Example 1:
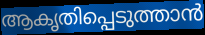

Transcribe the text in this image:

ആകൃതിപ്പെടുത്താൻ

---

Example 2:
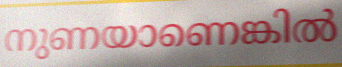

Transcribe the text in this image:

നുണയാണെങ്കിൽ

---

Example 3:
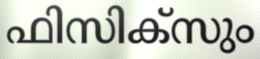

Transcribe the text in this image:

ഫിസിക്സും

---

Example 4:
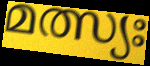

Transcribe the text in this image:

മത്സ്യഃ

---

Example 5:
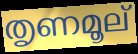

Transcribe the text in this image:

തൃണമൂല്